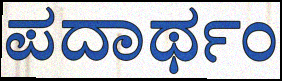
ಪದಾರ್ಥಂ